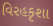
વિરહકૃશા